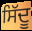
ਸਿੱਦੂ